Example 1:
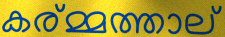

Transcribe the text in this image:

കര്മ്മത്താല്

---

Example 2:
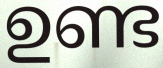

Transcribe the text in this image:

ഉണ്ട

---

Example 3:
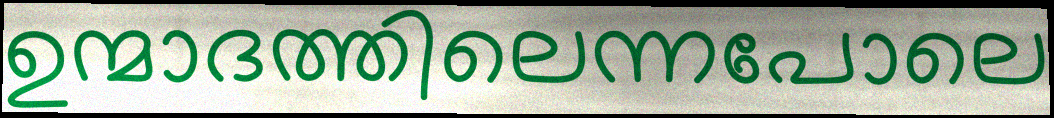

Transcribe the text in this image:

ഉന്മാദത്തിലെന്നപോലെ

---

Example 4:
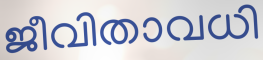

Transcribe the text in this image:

ജീവിതാവധി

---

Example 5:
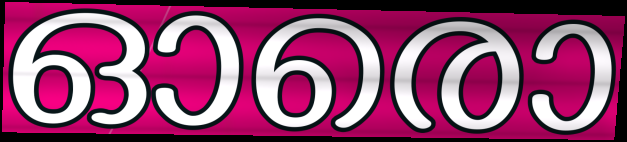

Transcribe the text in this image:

ഓരൊ